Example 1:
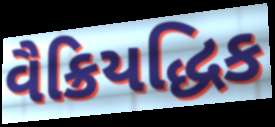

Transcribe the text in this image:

વૈક્રિયદ્ધિક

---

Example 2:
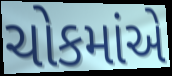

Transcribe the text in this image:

ચોકમાંએ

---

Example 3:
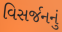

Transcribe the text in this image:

વિસર્જનનું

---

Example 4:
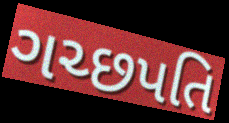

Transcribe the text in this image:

ગચ્છપતિ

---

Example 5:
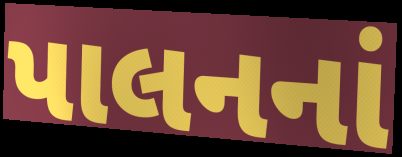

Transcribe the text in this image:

પાલનનાં